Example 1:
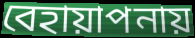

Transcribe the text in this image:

বেহায়াপনায়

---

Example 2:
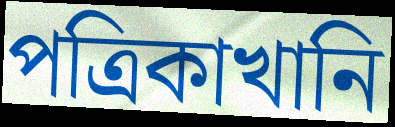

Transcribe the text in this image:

পত্রিকাখানি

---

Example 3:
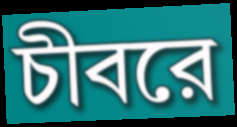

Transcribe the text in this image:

চীবরে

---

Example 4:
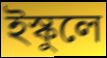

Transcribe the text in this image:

ইস্কুলে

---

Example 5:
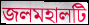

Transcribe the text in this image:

জলমহালটি